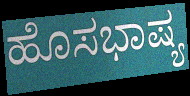
ಹೊಸಭಾಷ್ಯ